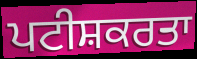
ਪਟੀਸ਼ਕਰਤਾ